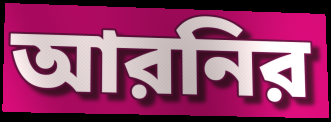
আরনির